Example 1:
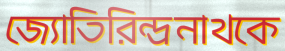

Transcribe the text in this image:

জ্যোতিরিন্দ্রনাথকে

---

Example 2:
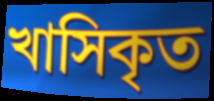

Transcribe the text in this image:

খাসিকৃত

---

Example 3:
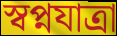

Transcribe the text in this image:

স্বপ্নযাত্রা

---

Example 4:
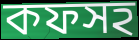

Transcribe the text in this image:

কফসহ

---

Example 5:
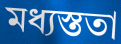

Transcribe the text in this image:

মধ্যস্ততা